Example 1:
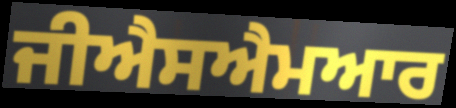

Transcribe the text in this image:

ਜੀਐਸਐਮਆਰ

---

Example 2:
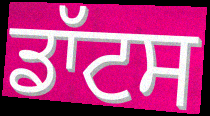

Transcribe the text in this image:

ਡਾੱਟਸ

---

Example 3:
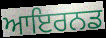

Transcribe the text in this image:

ਆਇਰਨਡ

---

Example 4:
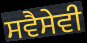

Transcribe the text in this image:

ਸਵੈਸੇਵੀ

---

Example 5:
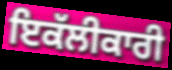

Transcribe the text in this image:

ਇਕੱਲੀਕਾਰੀ